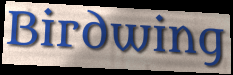
Birdwing